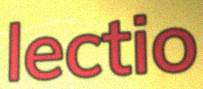
lectio